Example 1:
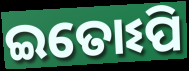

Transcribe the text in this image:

ଇତୋଽପି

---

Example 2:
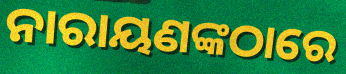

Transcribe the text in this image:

ନାରାୟଣଙ୍କଠାରେ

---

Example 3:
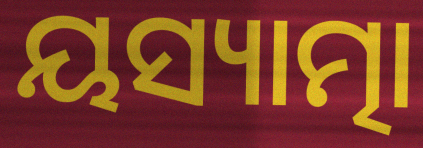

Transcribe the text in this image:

ୟସ୍ୟାତ୍ମା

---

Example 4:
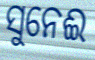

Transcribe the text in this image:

ସୁନେଈ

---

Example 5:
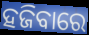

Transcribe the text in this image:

ହଜିବାରେ